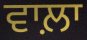
ਵਾਲ਼ਾ